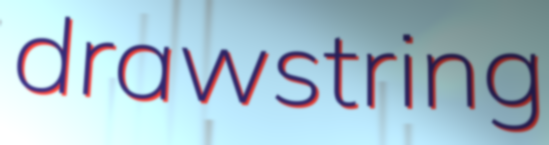
drawstring